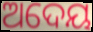
ଅଦେୟ